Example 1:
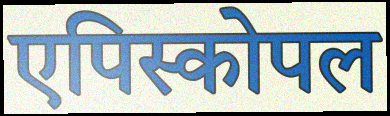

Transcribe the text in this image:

एपिस्कोपल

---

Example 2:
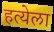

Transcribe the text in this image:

हत्येला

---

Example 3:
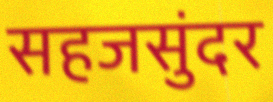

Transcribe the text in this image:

सहजसुंदर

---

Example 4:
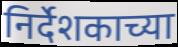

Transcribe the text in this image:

निर्देशकाच्या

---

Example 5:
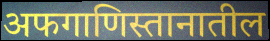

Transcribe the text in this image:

अफगाणिस्तानातील